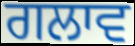
ਗਲਾਵ